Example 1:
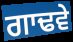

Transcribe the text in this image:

ਗਾਢਵੇ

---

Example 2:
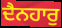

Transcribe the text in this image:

ਦੈਨਹਾਰੁ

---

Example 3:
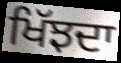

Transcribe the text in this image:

ਖਿੱਝਦਾ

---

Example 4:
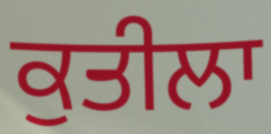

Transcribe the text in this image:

ਕੁਤੀਲਾ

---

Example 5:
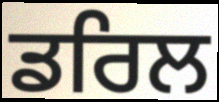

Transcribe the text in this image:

ਡਰਿਲ